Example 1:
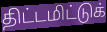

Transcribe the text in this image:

திட்டமிட்டுக்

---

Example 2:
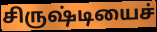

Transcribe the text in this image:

சிருஷ்டியைச்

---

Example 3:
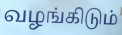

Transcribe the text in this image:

வழங்கிடும்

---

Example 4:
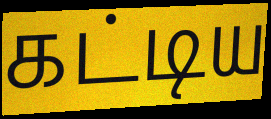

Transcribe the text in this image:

கட்டிய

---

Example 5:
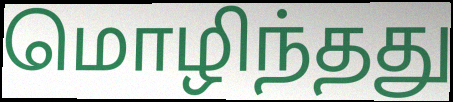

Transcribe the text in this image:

மொழிந்தது